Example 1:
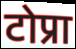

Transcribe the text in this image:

टोप्रा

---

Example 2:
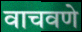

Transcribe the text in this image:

वाचवणे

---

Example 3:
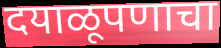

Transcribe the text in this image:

दयाळूपणाचा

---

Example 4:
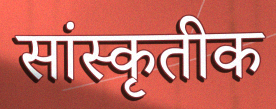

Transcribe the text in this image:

सांस्कृतीक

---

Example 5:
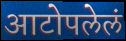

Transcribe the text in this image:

आटोपलेलं